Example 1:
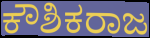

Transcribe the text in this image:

ಕೌಶಿಕರಾಜ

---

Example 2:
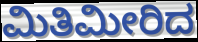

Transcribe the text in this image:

ಮಿತಿಮೀರಿದ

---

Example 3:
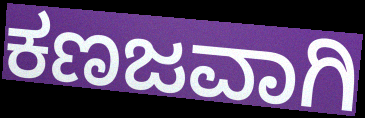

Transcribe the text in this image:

ಕಣಜವಾಗಿ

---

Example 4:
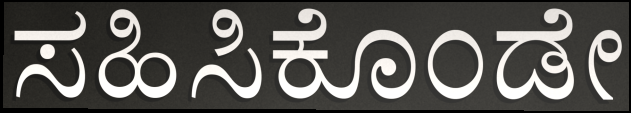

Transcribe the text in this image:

ಸಹಿಸಿಕೊಂಡೇ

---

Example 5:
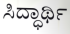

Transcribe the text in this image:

ಸಿದ್ಧಾರ್ಥಿ